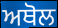
ਅਥੋਲ